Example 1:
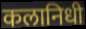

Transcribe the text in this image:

कलानिधी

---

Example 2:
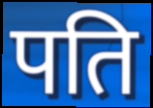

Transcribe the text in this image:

पति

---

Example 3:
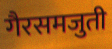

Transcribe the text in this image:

गैरसमजुती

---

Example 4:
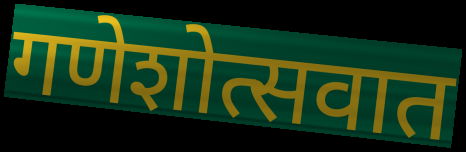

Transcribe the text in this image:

गणेशोत्सवात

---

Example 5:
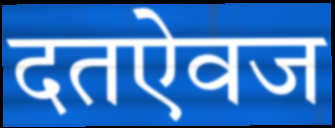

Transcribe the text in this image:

दतऐवज